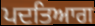
ਪਦਤਿਆਗ